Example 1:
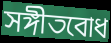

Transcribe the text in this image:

সঙ্গীতবোধ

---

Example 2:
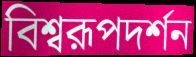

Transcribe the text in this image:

বিশ্বরূপদর্শন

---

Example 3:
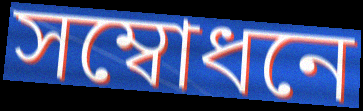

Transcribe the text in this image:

সম্বোধনে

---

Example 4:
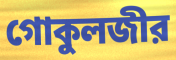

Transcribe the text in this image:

গোকুলজীর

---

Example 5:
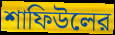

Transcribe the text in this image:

শাফিউলের